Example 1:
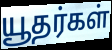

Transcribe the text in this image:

யூதர்கள்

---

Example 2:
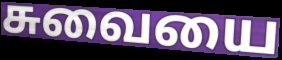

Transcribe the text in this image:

சுவையை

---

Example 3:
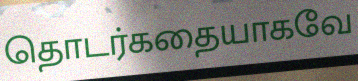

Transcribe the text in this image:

தொடர்கதையாகவே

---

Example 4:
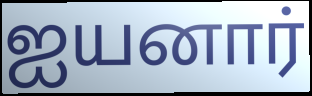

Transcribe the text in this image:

ஐயனார்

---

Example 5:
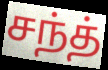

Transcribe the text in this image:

சந்த்